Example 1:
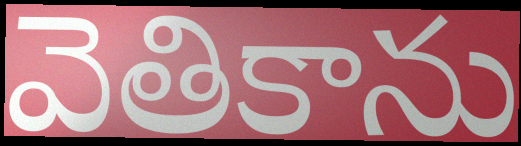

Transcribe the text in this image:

వెతికాను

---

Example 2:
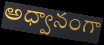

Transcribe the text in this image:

అధ్వానంగా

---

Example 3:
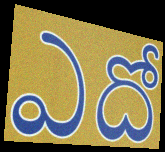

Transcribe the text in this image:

ఎదో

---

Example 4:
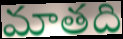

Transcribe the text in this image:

మాతది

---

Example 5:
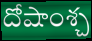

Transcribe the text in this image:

దోషాంశ్చ